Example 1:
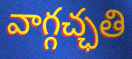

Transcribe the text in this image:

వాగ్గచ్ఛతి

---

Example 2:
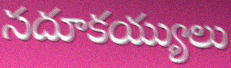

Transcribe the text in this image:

సదూకయ్యులు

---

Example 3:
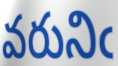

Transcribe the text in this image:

వరునిఁ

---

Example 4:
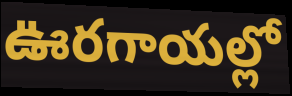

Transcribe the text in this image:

ఊరగాయల్లో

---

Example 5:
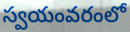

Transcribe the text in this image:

స్వయంవరంలో